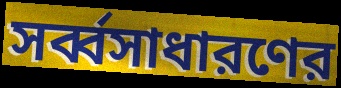
সর্ব্বসাধারণের